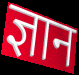
ज्ञान